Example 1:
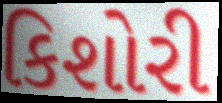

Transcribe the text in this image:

કિશોરી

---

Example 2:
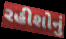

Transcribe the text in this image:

રહીશોનું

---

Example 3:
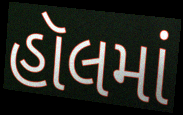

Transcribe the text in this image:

હૉલમાં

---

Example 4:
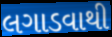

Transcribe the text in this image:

લગાડવાથી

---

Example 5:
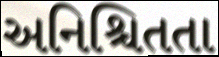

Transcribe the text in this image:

અનિશ્ચિતતા